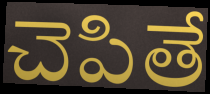
చెపితే